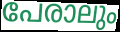
പേരാലും